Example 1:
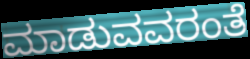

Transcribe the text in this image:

ಮಾಡುವವರಂತೆ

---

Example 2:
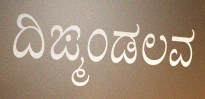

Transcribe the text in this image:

ದಿಙ್ಮಂಡಲವ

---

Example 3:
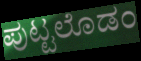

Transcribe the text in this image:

ಪುಟ್ಟಲೊಡಂ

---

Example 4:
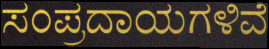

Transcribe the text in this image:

ಸಂಪ್ರದಾಯಗಳಿವೆ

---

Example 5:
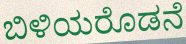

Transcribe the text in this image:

ಬಿಳಿಯರೊಡನೆ